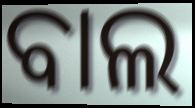
ବାଲ